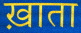
ख़ाता